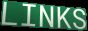
LINKS